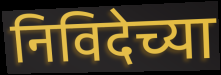
निविदेच्या